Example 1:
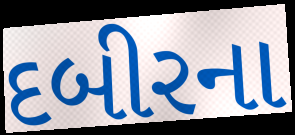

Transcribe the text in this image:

દબીરના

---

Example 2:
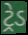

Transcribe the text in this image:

ટ્રેડ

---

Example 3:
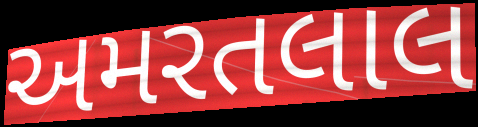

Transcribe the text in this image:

અમરતલાલ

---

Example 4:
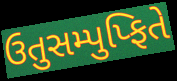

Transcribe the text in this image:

ઉતુસમ્પુપ્ફિતે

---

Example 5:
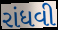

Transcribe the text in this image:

રાંધવી